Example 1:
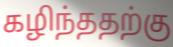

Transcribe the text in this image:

கழிந்ததற்கு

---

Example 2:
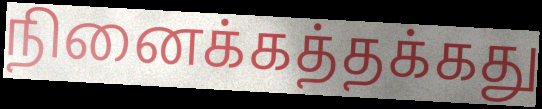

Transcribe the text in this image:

நினைக்கத்தக்கது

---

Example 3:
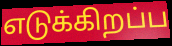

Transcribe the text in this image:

எடுக்கிறப்ப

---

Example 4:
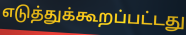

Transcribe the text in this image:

எடுத்துக்கூறப்பட்டது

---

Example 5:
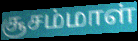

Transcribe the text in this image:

சூசம்மாள்